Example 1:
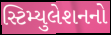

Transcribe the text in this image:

સ્ટિમ્યુલેશનનો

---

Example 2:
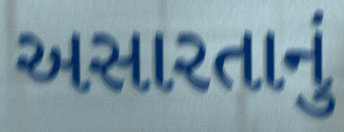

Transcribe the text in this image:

અસારતાનું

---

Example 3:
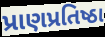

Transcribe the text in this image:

પ્રાણપ્રતિષ્ઠા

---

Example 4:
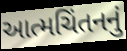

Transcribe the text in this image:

આત્મચિંતનનું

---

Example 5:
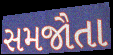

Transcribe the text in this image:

સમજૌતા